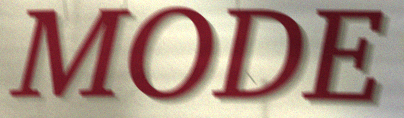
MODE